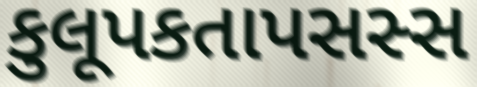
કુલૂપકતાપસસ્સ